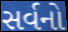
સર્વનો